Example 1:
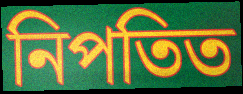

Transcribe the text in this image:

নিপতিত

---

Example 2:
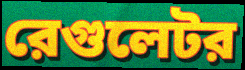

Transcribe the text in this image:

রেগুলেটর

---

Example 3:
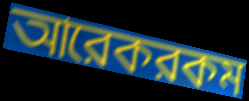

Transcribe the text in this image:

আরেকরকম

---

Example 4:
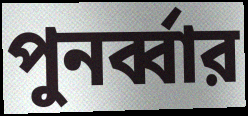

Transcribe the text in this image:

পুনর্ব্বার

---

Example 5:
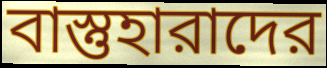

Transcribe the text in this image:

বাস্তুহারাদের